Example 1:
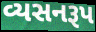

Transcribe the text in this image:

વ્યસનરૂપ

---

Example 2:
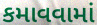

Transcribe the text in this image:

કમાવવામાં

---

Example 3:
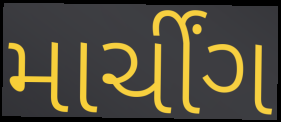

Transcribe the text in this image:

માર્ચીંગ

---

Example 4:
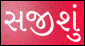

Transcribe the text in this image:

સજીશું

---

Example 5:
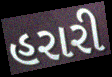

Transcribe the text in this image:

હરારી